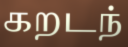
கறடந்